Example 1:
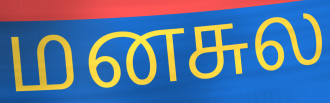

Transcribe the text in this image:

மனசுல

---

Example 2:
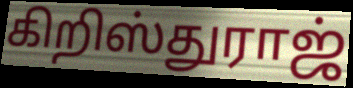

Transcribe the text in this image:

கிறிஸ்துராஜ்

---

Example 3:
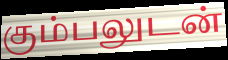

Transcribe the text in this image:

கும்பலுடன்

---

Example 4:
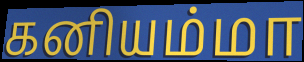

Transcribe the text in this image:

கனியம்மா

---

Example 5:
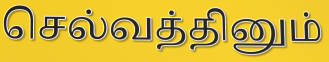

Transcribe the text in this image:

செல்வத்தினும்